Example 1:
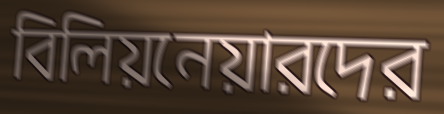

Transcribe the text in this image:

বিলিয়নেয়ারদের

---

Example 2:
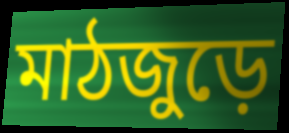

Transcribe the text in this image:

মাঠজুড়ে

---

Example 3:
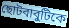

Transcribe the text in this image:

ছোটবাবুটিকে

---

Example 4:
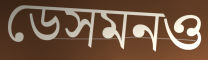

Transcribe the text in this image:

ডেসমনও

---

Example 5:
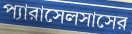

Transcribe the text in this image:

প্যারাসেলসাসের